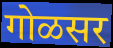
गोळसर